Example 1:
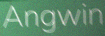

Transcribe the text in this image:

Angwin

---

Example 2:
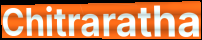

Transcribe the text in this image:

Chitraratha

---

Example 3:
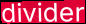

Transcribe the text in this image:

divider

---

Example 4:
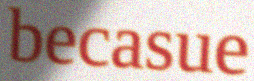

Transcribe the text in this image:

becasue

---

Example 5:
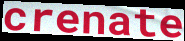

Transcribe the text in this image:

crenate